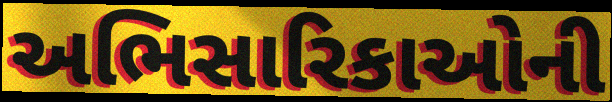
અભિસારિકાઓની